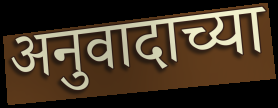
अनुवादाच्या